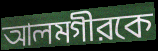
আলমগীরকে